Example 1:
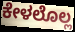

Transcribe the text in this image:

ಕೇಳಲೊಲ್ಲ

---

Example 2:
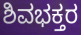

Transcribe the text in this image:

ಶಿವಭಕ್ತರ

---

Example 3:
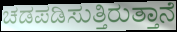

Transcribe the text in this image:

ಚಡಪಡಿಸುತ್ತಿರುತ್ತಾನೆ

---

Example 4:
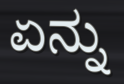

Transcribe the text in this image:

ಏನ್ನು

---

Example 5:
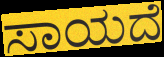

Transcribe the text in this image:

ಸಾಯದೆ